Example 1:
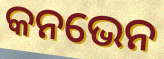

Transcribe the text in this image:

କନଭେନ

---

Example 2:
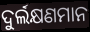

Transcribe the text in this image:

ଦୁର୍ଲକ୍ଷଣମାନ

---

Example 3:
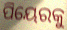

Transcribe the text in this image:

ପିୟେରକୁ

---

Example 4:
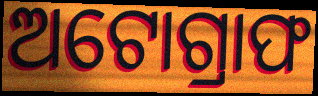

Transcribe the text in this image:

ଅଟୋଗ୍ରାଫ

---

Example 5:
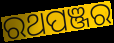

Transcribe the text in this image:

ରଥପଞ୍ଜର